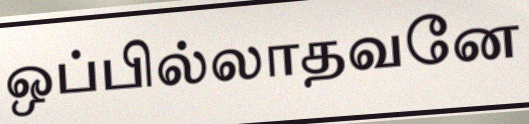
ஒப்பில்லாதவனே